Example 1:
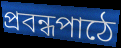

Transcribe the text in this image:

প্রবন্ধপাঠে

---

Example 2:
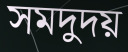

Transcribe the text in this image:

সমদুদয়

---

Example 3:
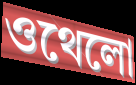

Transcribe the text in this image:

ওথেলো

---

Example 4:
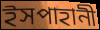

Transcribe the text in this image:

ইসপাহানী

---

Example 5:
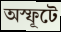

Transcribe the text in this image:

অস্ফূটে